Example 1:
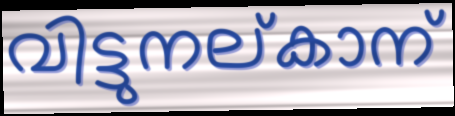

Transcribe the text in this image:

വിട്ടുനല്കാന്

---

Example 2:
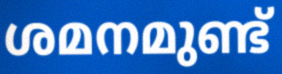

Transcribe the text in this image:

ശമനമുണ്ട്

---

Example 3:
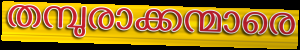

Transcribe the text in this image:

തമ്പുരാക്കന്മാരെ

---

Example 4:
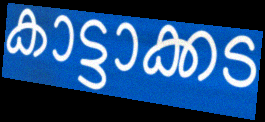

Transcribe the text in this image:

കാട്ടാക്കട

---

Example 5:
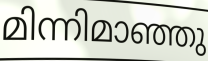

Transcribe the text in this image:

മിന്നിമാഞ്ഞു